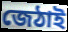
জেঠাই